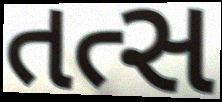
તત્સ